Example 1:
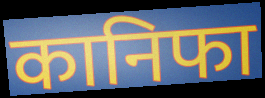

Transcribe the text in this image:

कानिफा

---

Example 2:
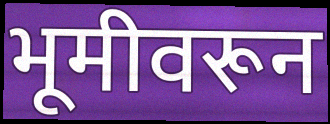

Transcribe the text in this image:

भूमीवरून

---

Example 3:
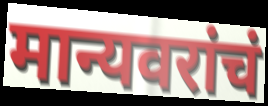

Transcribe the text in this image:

मान्यवरांचं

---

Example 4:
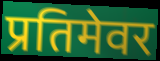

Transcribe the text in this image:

प्रतिमेवर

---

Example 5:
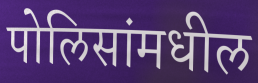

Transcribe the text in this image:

पोलिसांमधील